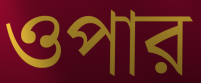
ওপার